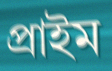
প্রাইম